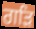
ਗੜਿ